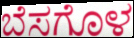
ಬೆಸಗೊಳ